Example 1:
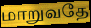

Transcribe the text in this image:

மாறுவதே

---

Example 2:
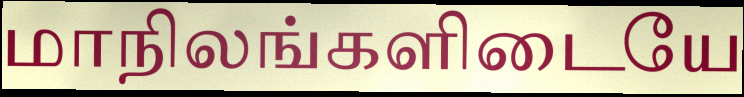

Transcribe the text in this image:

மாநிலங்களிடையே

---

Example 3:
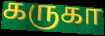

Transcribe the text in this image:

கருகா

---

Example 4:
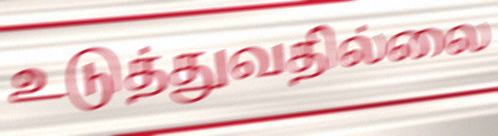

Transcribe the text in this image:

உடுத்துவதில்லை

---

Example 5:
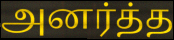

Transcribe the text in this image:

அனர்த்த